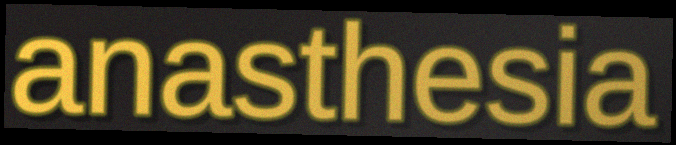
anasthesia